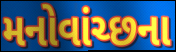
મનોવાંચ્છના